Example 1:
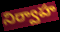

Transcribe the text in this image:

నిర్వాహ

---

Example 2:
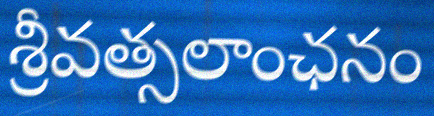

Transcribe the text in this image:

శ్రీవత్సలాంఛనం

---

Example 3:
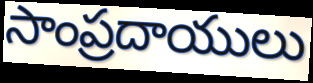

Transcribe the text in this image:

సాంప్రదాయులు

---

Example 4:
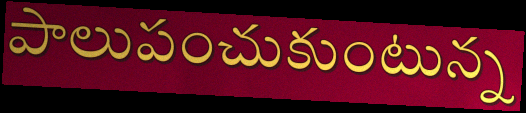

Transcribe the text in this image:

పాలుపంచుకుంటున్న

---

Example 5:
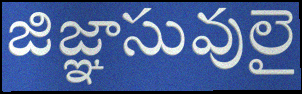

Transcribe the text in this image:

జిజ్ఞాసువులై